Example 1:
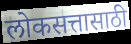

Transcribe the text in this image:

लोकसत्तासाठी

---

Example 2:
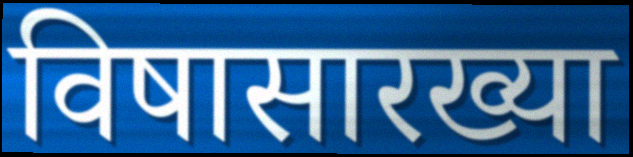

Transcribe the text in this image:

विषासारख्या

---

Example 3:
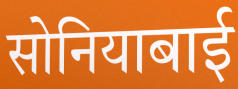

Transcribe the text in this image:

सोनियाबाई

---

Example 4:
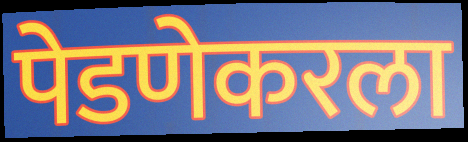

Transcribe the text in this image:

पेडणेकरला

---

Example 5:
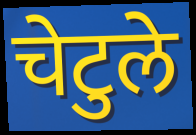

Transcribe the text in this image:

चेटुले